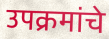
उपक्रमांचे